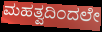
ಮಹತ್ವದಿಂದಲೇ